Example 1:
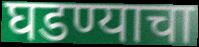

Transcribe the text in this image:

घडण्याचा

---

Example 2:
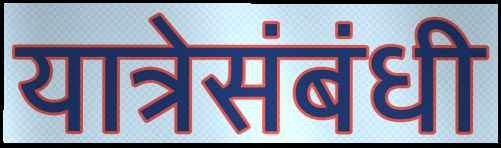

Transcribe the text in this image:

यात्रेसंबंधी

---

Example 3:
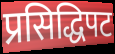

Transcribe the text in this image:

प्रसिद्धिपट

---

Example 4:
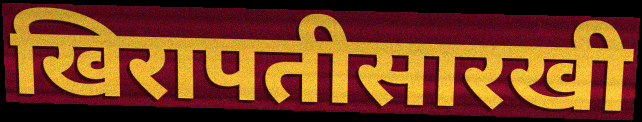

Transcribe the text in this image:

खिरापतीसारखी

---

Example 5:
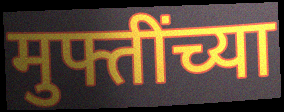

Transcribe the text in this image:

मुफ्तींच्या